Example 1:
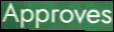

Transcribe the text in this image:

Approves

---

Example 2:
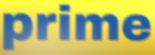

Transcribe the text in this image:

prime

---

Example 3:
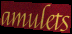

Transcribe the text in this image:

amulets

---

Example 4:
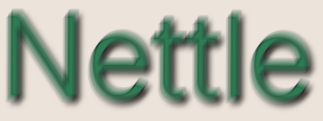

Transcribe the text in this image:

Nettle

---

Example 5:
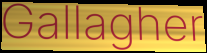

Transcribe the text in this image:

Gallagher